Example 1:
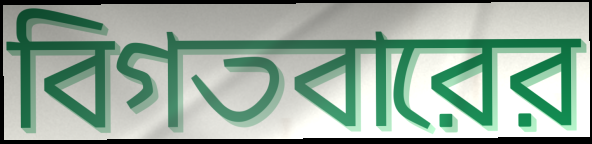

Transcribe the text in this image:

বিগতবারের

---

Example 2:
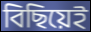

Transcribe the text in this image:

বিছিয়েই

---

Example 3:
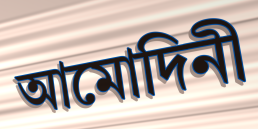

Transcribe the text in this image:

আমোদিনী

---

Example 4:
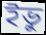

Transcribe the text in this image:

ইভু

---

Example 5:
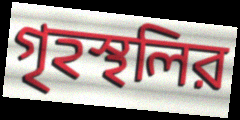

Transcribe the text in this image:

গৃহস্থলির